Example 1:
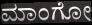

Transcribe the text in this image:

ಮಾಂಗೋ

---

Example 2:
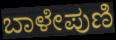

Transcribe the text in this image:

ಬಾಳೇಪುಣಿ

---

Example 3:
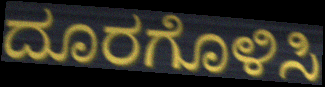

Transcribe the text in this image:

ದೂರಗೊಳಿಸಿ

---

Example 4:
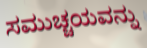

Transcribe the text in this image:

ಸಮುಚ್ಚಯವನ್ನು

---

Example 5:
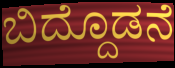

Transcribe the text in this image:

ಬಿದ್ದೊಡನೆ